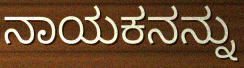
ನಾಯಕನನ್ನು